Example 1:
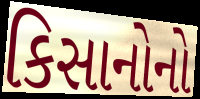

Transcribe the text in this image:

કિસાનોનો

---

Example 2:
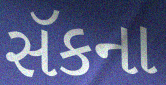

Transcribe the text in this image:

સૅકના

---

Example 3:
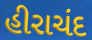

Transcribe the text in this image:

હીરાચંદ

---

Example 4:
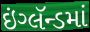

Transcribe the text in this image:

ઇંગ્લૅન્ડમાં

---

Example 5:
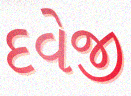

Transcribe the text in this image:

દવેજી